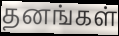
தனங்கள்